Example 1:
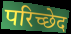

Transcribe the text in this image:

परिच्छेद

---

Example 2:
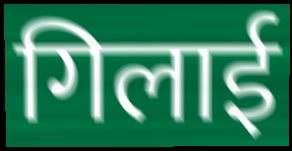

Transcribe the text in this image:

गिलाई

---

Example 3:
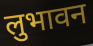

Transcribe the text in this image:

लुभावन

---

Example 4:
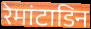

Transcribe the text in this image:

रेमांटाडिन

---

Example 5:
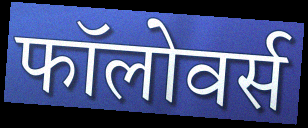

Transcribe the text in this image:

फॉलोवर्स